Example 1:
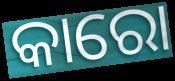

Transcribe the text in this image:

କାରୋ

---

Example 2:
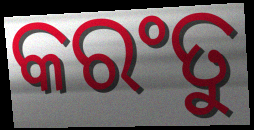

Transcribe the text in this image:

କରଂତୁ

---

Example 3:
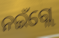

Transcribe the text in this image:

ନଇଁଗ୍ଲେ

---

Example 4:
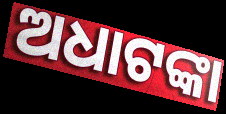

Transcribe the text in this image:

ଅଧାଟଙ୍କା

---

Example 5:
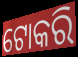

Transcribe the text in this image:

ଟୋକରି